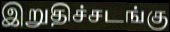
இறுதிச்சடங்கு